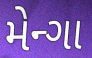
મેન્ગા